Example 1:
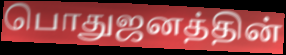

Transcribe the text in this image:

பொதுஜனத்தின்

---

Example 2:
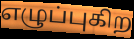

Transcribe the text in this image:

எழுப்புகிற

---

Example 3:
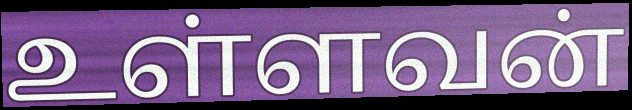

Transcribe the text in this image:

உள்ளவன்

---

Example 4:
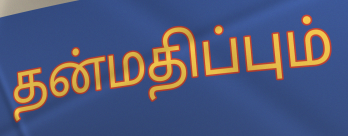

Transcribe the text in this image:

தன்மதிப்பும்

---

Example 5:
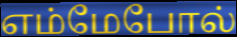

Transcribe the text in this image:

எம்மேபோல்